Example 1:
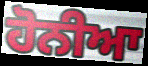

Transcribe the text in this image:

ਹੋਨੀਆ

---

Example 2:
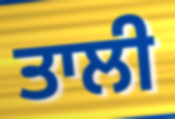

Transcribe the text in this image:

ਤਾਲੀ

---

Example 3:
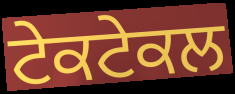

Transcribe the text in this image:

ਟੇਕਟੇਕਲ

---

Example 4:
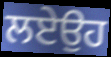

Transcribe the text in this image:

ਲਏਉਹ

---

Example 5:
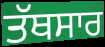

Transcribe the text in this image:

ਤੱਥਸਾਰ